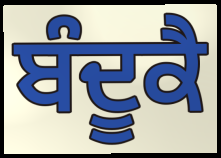
ਬੰਦੂਕੈ